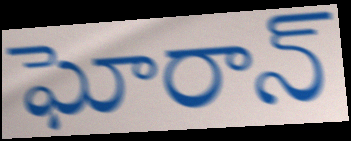
ఘోరాన్